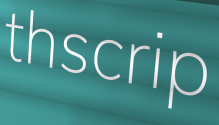
thscrip